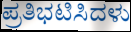
ಪ್ರತಿಭಟಿಸಿದಳು